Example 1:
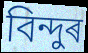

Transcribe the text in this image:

বিন্দুৰ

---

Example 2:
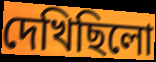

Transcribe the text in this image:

দেখিছিলো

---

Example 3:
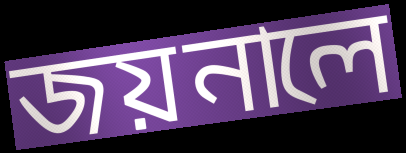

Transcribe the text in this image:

জয়নালে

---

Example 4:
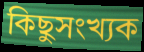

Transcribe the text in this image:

কিছুসংখ্যক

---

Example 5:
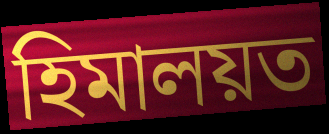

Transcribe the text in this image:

হিমালয়ত